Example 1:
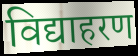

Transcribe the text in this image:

विद्याहरण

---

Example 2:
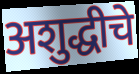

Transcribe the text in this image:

अशुद्धीचे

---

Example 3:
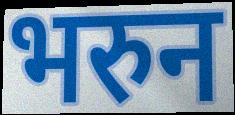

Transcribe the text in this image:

भरुन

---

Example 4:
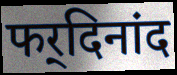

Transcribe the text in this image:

फर्दिनांद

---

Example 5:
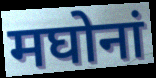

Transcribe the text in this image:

मघोनां